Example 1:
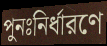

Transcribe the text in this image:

পুনঃনির্ধারণে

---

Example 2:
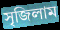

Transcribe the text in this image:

সৃজিলাম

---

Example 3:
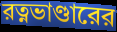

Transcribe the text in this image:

রত্নভাণ্ডারের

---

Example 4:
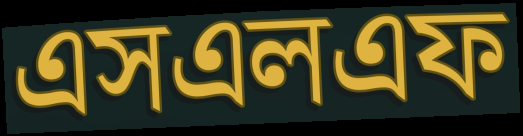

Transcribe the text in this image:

এসএলএফ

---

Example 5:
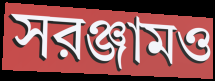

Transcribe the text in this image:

সরঞ্জামও